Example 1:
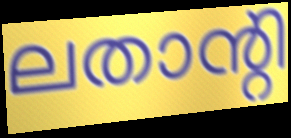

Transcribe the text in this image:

ലതാന്റി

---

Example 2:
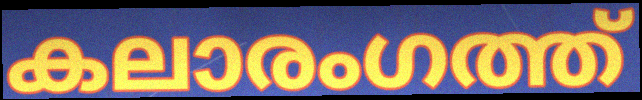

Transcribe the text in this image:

കലാരംഗത്ത്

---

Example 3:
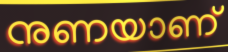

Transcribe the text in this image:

നുണയാണ്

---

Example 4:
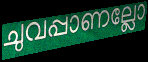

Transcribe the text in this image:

ചുവപ്പാണല്ലോ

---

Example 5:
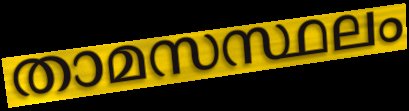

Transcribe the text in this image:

താമസസ്ഥലം